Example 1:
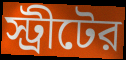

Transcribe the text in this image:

স্ট্রীটের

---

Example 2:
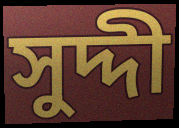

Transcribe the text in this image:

সুদ্দী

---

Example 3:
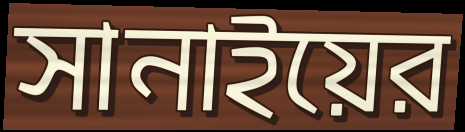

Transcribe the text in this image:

সানাইয়ের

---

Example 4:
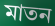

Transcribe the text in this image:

মাতন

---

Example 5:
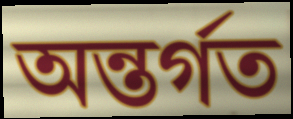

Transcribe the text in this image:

অন্তর্গত